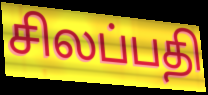
சிலப்பதி